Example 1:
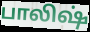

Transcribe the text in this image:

பாலிஷ்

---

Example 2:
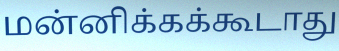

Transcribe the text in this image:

மன்னிக்கக்கூடாது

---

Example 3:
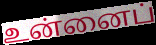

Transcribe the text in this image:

உன்னைப்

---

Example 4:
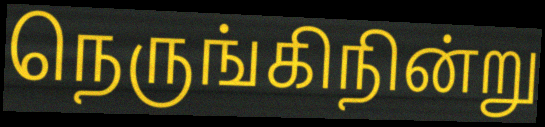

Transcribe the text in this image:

நெருங்கிநின்று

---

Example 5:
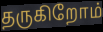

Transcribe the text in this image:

தருகிறோம்